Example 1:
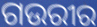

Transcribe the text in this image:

ଗଉରୀର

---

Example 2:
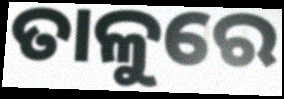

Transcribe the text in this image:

ତାଳୁରେ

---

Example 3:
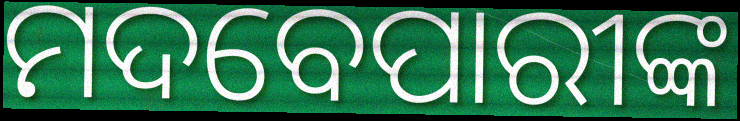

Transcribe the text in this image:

ମଦବେପାରୀଙ୍କ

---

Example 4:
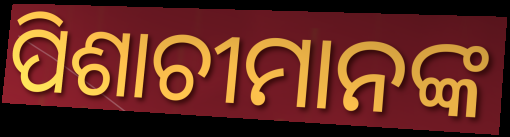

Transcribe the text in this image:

ପିଶାଚୀମାନଙ୍କ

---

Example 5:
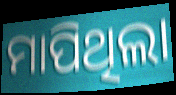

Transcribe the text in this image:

ମାପିଥିଲା